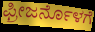
ಫ್ರೀಜರ್ನೊಳಗೆ